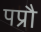
पप्रौ